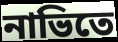
নাভিতে